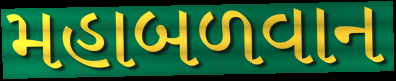
મહાબળવાન